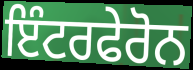
ਇੰਟਰਫੇਰੋਨ